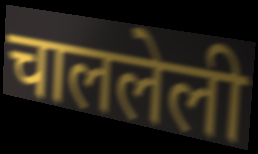
चाललेली